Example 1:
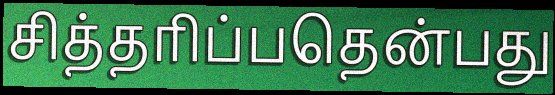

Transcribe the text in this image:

சித்தரிப்பதென்பது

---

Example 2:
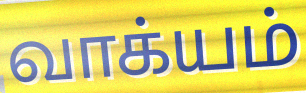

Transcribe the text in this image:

வாக்யம்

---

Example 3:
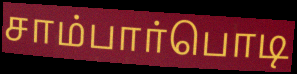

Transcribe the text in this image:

சாம்பார்பொடி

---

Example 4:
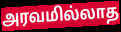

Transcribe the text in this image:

அரவமில்லாத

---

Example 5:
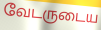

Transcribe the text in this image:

வேடருடைய